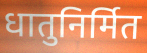
धातुनिर्मित